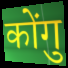
कोंगु